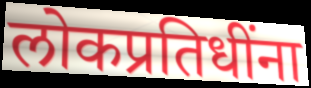
लोकप्रतिधींना